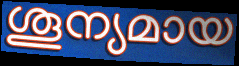
ശൂന്യമായ